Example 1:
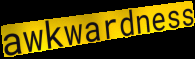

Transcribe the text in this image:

awkwardness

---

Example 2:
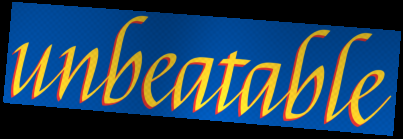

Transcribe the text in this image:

unbeatable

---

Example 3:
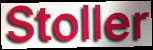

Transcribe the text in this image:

Stoller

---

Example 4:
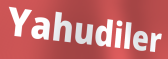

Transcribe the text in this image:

Yahudiler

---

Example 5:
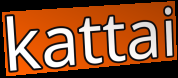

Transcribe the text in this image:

kattai